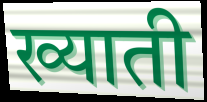
ख्याती